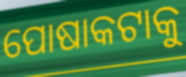
ପୋଷାକଟାକୁ